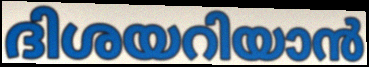
ദിശയറിയാൻ